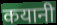
कयानी